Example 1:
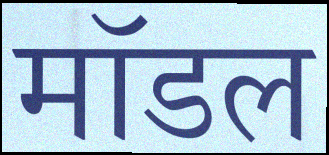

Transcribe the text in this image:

मॉडल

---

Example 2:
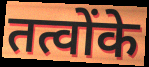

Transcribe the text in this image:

तत्वोंके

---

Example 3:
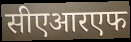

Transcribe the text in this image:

सीएआरएफ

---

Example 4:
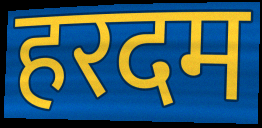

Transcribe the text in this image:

हरदम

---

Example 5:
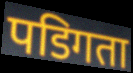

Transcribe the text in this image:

पडिगता